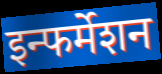
इन्फर्मेशन